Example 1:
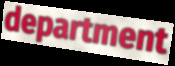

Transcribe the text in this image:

department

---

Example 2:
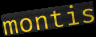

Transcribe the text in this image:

montis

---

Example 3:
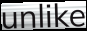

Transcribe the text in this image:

unlike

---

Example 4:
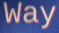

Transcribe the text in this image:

Way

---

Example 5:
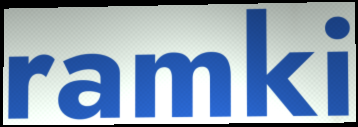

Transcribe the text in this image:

ramki